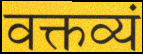
वक्तव्यं